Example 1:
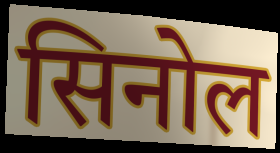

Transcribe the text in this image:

सिनोल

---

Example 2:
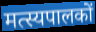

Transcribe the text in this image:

मत्स्यपालकों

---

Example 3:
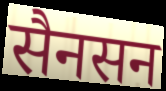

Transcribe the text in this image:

सैनसन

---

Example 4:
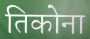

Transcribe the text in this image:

तिकोना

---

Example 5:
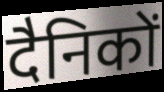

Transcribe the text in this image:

दैनिकों